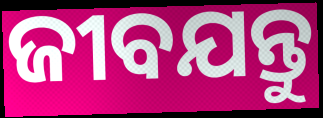
ଜୀବଯନ୍ତୁ